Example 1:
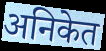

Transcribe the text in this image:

अनिकेत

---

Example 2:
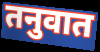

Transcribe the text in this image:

तनुवात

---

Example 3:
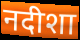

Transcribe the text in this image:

नदीशा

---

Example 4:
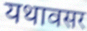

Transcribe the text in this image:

यथावसर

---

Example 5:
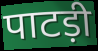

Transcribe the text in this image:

पाटड़ी